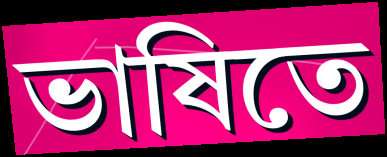
ভাষিতে